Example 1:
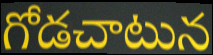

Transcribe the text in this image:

గోడచాటున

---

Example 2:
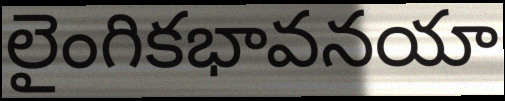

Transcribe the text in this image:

లైంగికభావనయా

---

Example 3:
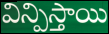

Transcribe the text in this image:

విన్పిస్తాయి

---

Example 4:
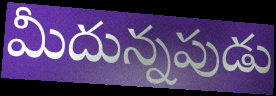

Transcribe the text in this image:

మీదున్నపుడు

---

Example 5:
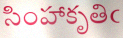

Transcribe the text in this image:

సింహాకృతిఁ